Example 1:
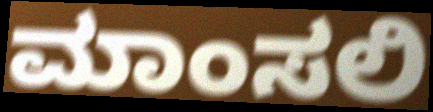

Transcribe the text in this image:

ಮಾಂಸಲಿ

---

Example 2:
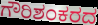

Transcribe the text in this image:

ಗೌರಿಶಂಕರದ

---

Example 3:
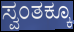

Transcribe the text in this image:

ಸ್ವಂತಕ್ಕೂ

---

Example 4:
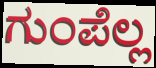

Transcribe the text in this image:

ಗುಂಪೆಲ್ಲ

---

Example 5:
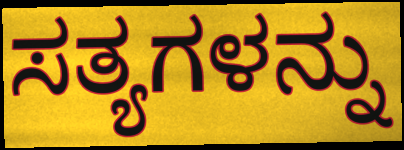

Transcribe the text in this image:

ಸತ್ಯಗಳನ್ನು